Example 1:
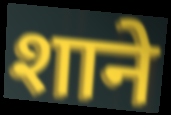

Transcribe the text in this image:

शाने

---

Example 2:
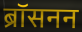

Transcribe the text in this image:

ब्रॉसनन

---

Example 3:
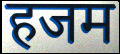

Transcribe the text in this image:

हजम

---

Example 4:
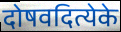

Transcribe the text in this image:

दोषवदित्येके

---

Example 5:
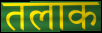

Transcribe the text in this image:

तलाक